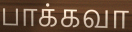
பாக்கவா